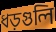
ধড়গুলি